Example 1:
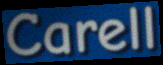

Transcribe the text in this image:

Carell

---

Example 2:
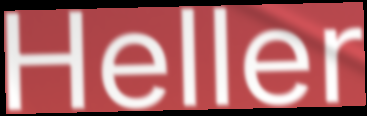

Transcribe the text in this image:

Heller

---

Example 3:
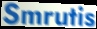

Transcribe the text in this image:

Smrutis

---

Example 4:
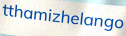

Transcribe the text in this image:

tthamizhelango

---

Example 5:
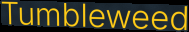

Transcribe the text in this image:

Tumbleweed